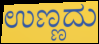
ಉಣ್ಣದು